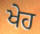
ਖੇਹ